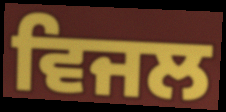
ਵਿਜਲ